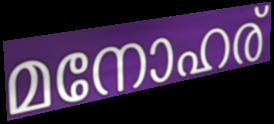
മനോഹര്